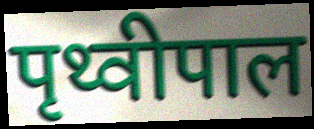
पृथ्वीपाल